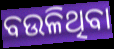
ବଉଳିଥିବା